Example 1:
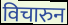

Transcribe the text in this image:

विचारुन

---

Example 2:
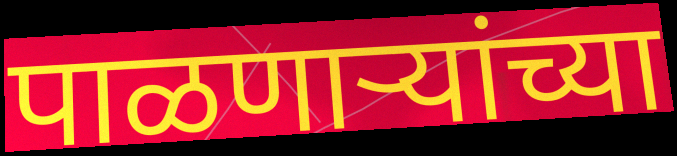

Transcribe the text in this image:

पाळणाऱ्यांच्या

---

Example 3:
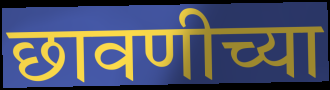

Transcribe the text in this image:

छावणीच्या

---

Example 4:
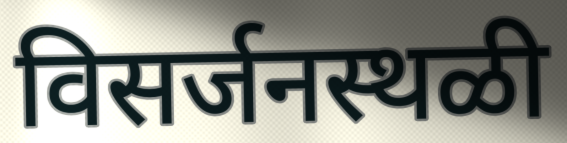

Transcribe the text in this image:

विसर्जनस्थळी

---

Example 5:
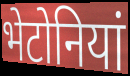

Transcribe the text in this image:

भेटोनियां